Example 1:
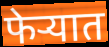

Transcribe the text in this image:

फेऱ्यात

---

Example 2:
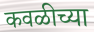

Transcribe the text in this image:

कवळीच्या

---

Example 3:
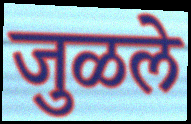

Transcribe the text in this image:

जुळले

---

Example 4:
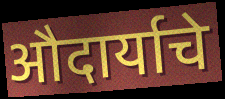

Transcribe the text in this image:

औदार्याचे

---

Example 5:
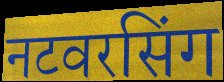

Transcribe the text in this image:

नटवरसिंग